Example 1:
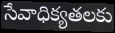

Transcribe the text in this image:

సేవాధిక్యతలకు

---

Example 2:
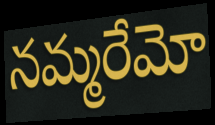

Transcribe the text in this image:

నమ్మరేమో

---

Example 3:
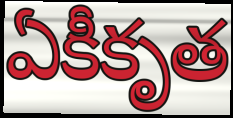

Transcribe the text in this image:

ఏకీకృత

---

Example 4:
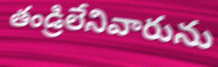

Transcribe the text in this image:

తండ్రిలేనివారును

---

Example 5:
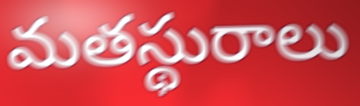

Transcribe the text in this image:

మతస్థురాలు